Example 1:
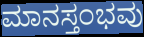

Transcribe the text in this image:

ಮಾನಸ್ತಂಭವು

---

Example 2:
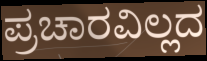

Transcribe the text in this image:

ಪ್ರಚಾರವಿಲ್ಲದ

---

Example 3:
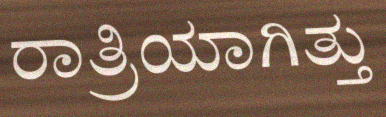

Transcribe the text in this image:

ರಾತ್ರಿಯಾಗಿತ್ತು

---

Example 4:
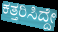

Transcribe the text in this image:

ಕತ್ತರಿಸಿದ್ದೇ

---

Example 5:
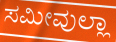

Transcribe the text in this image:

ಸಮೀವುಲ್ಲಾ